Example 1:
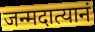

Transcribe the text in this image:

जन्मदात्यानं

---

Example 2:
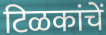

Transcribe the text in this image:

टिळकांचें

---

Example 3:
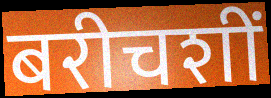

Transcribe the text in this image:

बरीचशीं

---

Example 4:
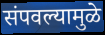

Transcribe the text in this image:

संपवल्यामुळे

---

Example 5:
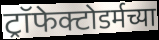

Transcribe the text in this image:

ट्रॉफेक्टोडर्मच्या